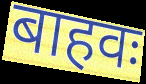
बाहवः